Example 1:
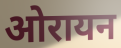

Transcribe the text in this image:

ओरायन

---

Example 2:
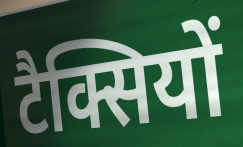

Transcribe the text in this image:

टैक्सियों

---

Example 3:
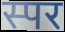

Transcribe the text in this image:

स्पर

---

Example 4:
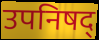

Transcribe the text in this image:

उपनिषद्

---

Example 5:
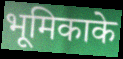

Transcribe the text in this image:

भूमिकाके